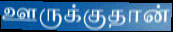
ஊருக்குதான்